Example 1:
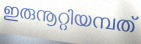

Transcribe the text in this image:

ഇരുനൂറ്റിയമ്പത്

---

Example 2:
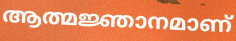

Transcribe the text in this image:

ആത്മജ്ഞാനമാണ്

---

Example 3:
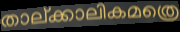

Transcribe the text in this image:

താല്ക്കാലികമത്രെ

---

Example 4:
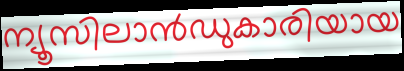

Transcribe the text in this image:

ന്യൂസിലാൻഡുകാരിയായ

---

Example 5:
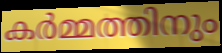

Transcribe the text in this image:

കർമ്മത്തിനും